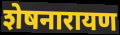
शेषनारायण